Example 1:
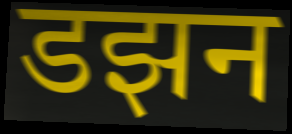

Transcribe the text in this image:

डझन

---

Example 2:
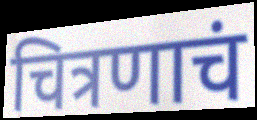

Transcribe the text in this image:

चित्रणाचं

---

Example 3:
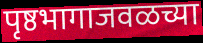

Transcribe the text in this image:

पृष्ठभागाजवळच्या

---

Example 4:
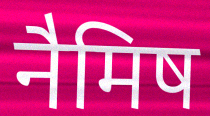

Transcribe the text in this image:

नैमिष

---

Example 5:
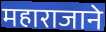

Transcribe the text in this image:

महाराजाने